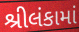
શ્રીલંકામાં